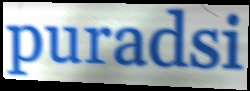
puradsi